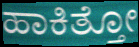
ಹಾಕಿತ್ತೋ